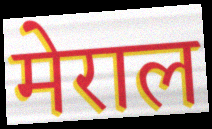
मेराल